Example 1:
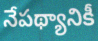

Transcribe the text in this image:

నేపథ్యానికీ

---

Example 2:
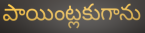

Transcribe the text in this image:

పాయింట్లకుగాను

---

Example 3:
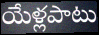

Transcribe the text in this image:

యేళ్లపాటు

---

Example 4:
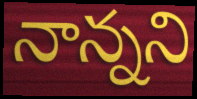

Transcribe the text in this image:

నాన్నని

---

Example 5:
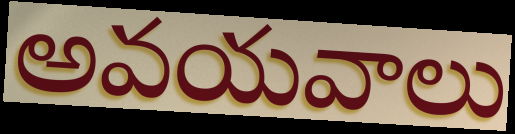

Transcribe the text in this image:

అవయవాలు